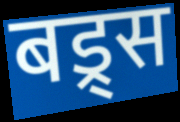
बड्र्स